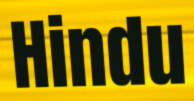
Hindu